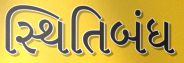
સ્થિતિબંધ